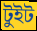
টুইট